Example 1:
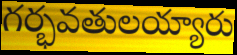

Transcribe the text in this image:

గర్భవతులయ్యారు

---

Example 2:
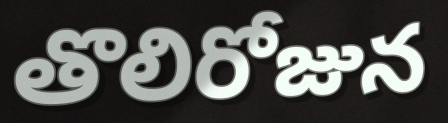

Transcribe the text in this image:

తొలిరోజున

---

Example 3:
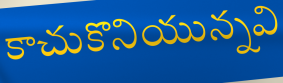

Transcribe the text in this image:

కాచుకొనియున్నవి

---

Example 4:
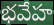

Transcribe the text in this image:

భవేహ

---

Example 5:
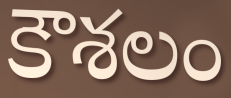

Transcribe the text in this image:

కౌశలం